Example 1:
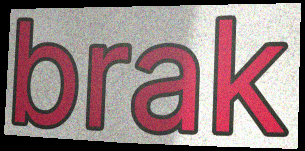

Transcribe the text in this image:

brak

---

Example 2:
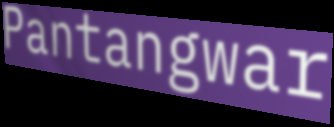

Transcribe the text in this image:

Pantangwar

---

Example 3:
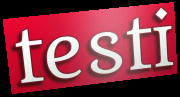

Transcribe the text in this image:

testi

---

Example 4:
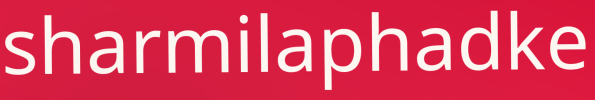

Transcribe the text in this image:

sharmilaphadke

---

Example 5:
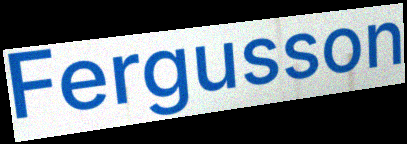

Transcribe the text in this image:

Fergusson